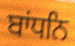
ਬਾਂਧਨਿ